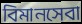
বিমানসেবা